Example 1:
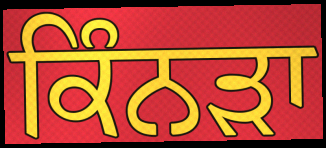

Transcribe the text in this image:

ਕਿੰਨੜਾ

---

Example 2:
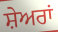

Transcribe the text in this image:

ਸ਼ੇਅਰਾਂ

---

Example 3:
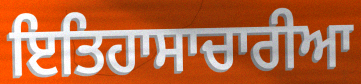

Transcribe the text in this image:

ਇਤਿਹਾਸਾਚਾਰੀਆ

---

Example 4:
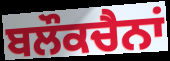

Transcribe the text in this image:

ਬਲੌਕਚੈਨਾਂ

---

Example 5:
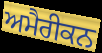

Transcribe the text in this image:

ਅਮੈਰੀਕਨ